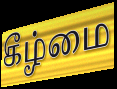
கீழ்மை